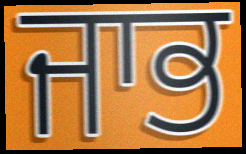
ਜਾਭ